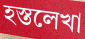
হস্তলেখা